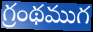
గ్రంథముగ